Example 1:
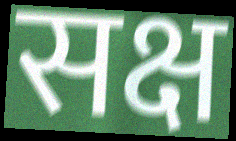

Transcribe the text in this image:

सक्ष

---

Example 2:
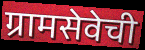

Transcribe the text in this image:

ग्रामसेवेची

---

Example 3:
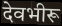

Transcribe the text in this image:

देवभीरू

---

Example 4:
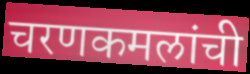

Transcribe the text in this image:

चरणकमलांची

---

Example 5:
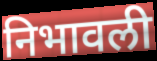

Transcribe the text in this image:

निभावली